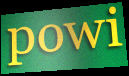
powi